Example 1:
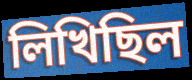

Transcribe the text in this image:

লিখিছিল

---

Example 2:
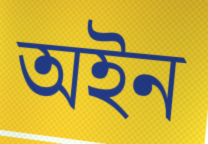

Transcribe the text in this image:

অইন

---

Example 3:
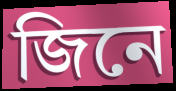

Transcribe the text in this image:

জিনে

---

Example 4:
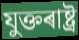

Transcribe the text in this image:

যুক্তৰাষ্ট্ৰ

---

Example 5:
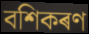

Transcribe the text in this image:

বশিকৰণ